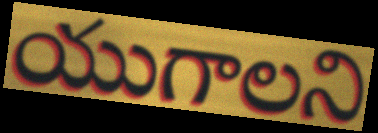
యుగాలని